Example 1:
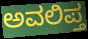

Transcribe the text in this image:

ಅವಲಿಪ್ತ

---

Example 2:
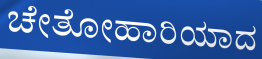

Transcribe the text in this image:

ಚೇತೋಹಾರಿಯಾದ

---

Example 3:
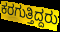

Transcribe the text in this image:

ಕರಗುತ್ತಿದ್ದರು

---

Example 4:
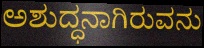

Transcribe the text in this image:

ಅಶುದ್ಧನಾಗಿರುವನು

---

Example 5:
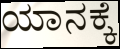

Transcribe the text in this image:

ಯಾನಕ್ಕೆ